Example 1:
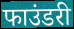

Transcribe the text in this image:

फाउंडरी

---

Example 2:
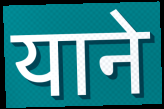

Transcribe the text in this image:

याने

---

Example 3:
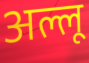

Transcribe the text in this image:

अल्लू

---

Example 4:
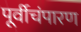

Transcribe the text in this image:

पूर्वीचंपारण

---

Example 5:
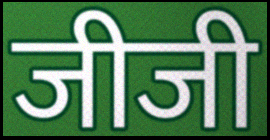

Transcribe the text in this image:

जीजी